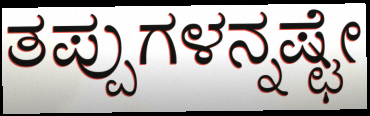
ತಪ್ಪುಗಳನ್ನಷ್ಟೇ